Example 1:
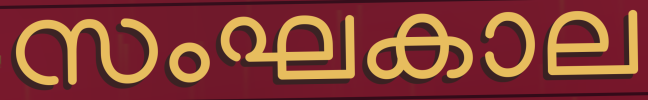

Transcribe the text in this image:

സംഘകാല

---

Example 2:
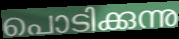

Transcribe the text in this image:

പൊടിക്കുന്നു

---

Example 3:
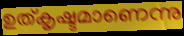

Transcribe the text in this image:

ഉത്കൃഷ്ടമാണെന്നു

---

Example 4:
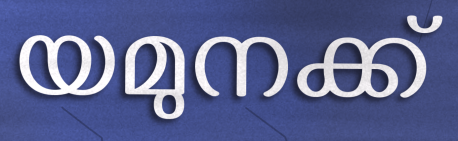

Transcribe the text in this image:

യമുനക്ക്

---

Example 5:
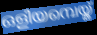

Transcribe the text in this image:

ഒളിയമ്പെയ്ത്